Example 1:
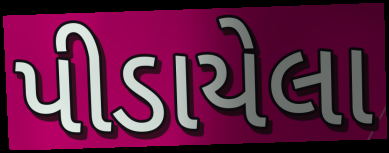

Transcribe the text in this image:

પીડાયેલા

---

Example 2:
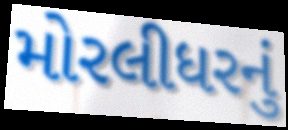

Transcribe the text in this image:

મોરલીધરનું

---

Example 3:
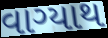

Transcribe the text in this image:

વાગ્યાથ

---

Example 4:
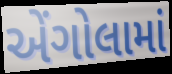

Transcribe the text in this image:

એંગોલામાં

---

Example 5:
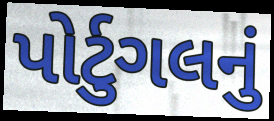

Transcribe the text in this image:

પોર્ટુગલનું